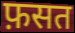
फ़सत